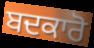
ਬਦਕਾਰੋ